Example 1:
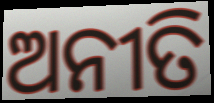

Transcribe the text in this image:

ଅନୀତି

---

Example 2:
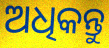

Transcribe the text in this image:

ଅଧିକନ୍ତୁ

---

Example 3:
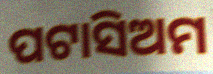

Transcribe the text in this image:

ପଟାସିଅମ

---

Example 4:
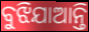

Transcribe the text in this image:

ବୁଝିଯାଆନ୍ତି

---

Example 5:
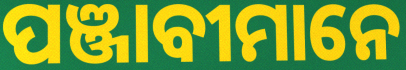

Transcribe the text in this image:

ପଞ୍ଜାବୀମାନେ